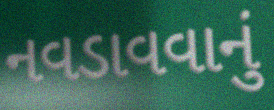
નવડાવવાનું